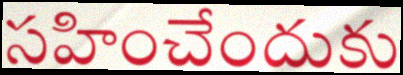
సహించేందుకు